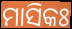
ମାସିକଃ